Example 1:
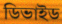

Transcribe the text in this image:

ডিভাইড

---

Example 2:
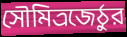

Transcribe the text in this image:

সৌমিত্রজেঠুর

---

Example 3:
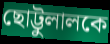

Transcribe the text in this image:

ছোট্টুলালকে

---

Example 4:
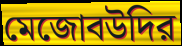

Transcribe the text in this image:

মেজোবউদির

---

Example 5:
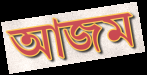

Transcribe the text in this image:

আজম